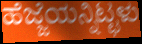
ಹೆಜ್ಜೆಯನ್ನಿಟ್ಟಳು